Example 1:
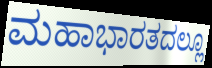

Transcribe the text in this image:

ಮಹಾಭಾರತದಲ್ಲೂ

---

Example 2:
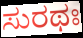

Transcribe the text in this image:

ಸುರಥಃ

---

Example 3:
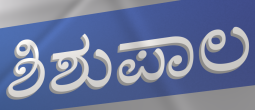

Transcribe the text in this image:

ಶಿಶುಪಾಲ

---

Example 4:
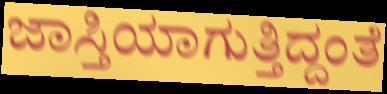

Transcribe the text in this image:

ಜಾಸ್ತಿಯಾಗುತ್ತಿದ್ದಂತೆ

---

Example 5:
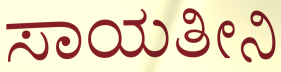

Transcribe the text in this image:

ಸಾಯತೀನಿ